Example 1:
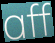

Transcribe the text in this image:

aff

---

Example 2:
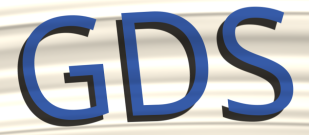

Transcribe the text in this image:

GDS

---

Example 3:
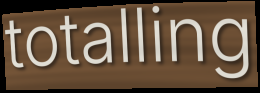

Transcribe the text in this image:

totalling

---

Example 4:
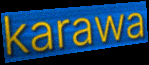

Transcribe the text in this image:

karawa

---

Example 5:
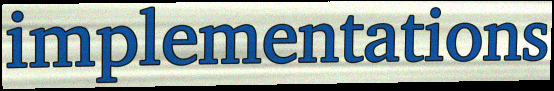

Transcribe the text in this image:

implementations